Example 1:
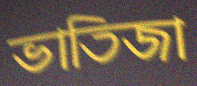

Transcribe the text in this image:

ভাতিজা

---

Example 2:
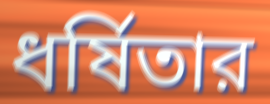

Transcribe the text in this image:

ধর্ষিতার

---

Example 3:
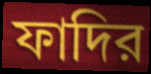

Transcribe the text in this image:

ফাদির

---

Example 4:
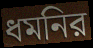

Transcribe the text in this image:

ধমনির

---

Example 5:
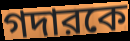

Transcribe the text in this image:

গদারকে